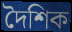
দৈশিক